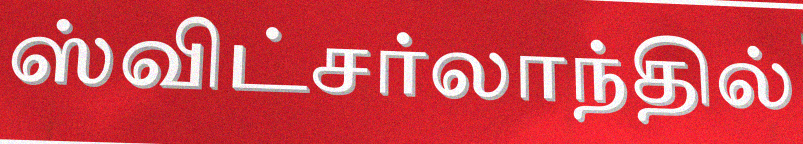
ஸ்விட்சர்லாந்தில்